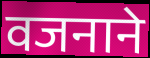
वजनाने